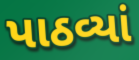
પાઠવ્યાં